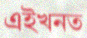
এইখনত